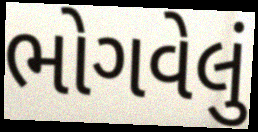
ભોગવેલું